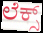
ಲೆಕ್ಸ್